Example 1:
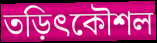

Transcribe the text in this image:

তড়িৎকৌশল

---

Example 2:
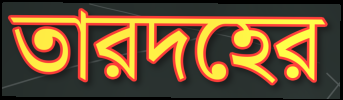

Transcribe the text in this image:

তারদহের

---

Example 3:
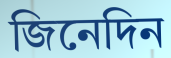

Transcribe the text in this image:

জিনেদিন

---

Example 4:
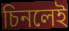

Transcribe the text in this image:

চিনলেই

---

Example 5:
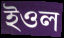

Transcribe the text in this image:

ইওল